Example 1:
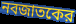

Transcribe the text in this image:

নবজাতকের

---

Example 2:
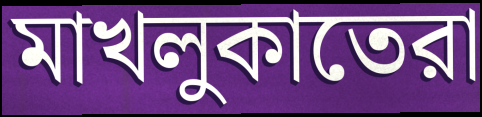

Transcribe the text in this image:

মাখলুকাতেরা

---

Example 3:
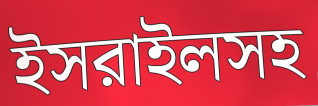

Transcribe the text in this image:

ইসরাইলসহ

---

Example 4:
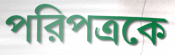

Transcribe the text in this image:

পরিপত্রকে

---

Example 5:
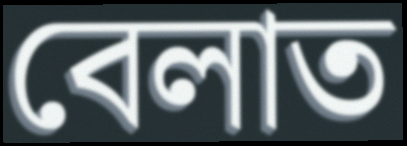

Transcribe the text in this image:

বেলাত